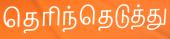
தெரிந்தெடுத்து